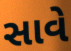
સાવે